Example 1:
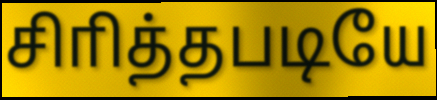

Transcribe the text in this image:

சிரித்தபடியே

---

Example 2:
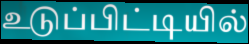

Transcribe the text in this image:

உடுப்பிட்டியில்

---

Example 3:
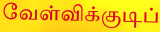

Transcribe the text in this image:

வேள்விக்குடிப்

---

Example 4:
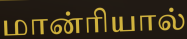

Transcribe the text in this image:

மான்ரியால்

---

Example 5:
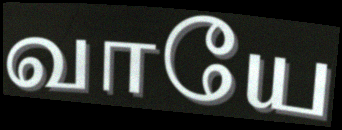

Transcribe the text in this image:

வாயே